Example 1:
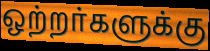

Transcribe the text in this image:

ஒற்றர்களுக்கு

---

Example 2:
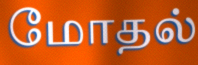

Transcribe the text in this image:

மோதல்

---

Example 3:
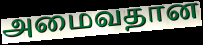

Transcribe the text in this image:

அமைவதான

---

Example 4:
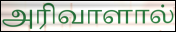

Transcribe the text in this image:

அரிவாளால்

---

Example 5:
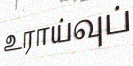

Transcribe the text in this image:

உராய்வுப்